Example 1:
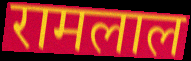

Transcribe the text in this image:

रामलाल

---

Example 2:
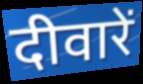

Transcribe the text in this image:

दीवारें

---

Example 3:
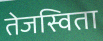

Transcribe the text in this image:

तेजस्विता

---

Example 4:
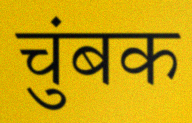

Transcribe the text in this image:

चुंबक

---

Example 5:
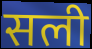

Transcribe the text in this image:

सली